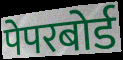
पेपरबोर्ड